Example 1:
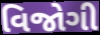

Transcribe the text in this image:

વિજોગી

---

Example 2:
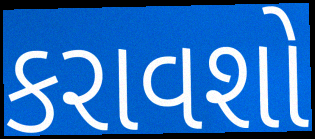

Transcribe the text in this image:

કરાવશો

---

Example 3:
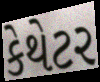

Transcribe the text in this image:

કેથેટર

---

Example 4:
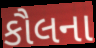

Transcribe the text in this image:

કૌલના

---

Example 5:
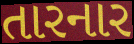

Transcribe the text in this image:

તારનાર